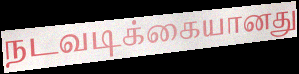
நடவடிக்கையானது